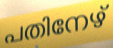
പതിനേഴ്